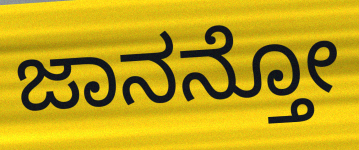
ಜಾನನ್ತೋ